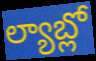
ల్యాబ్లో